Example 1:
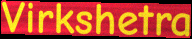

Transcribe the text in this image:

Virkshetra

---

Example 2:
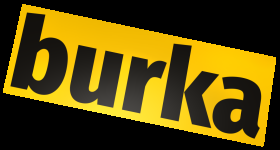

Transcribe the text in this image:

burka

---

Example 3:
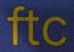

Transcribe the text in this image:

ftc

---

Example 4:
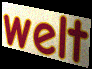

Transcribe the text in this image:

welt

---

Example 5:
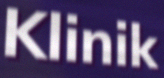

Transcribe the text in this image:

Klinik